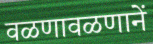
वळणावळणानें